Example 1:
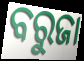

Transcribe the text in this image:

ବରୁଜା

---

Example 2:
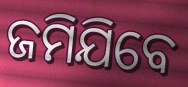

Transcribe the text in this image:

ଜମିଯିବେ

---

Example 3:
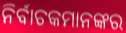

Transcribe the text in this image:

ନିର୍ବାଚକମାନଙ୍କର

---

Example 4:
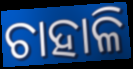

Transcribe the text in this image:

ଚାହାଳି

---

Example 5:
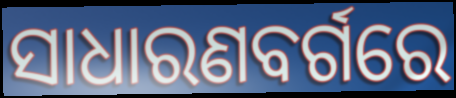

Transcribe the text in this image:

ସାଧାରଣବର୍ଗରେ